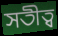
সতীত্ব